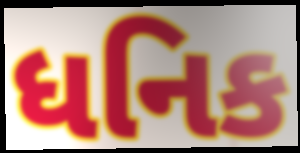
ધનિક